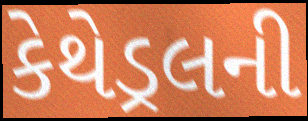
કેથેડ્રલની